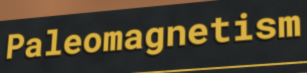
Paleomagnetism